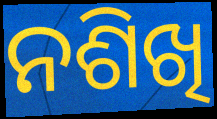
ନଶିଖି